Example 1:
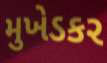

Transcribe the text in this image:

મુખેડકર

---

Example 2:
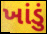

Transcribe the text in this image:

ખાંડું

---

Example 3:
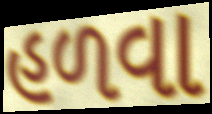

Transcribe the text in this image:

હળવા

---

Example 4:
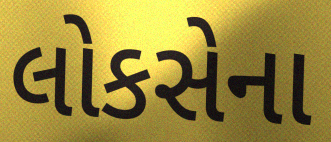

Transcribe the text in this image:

લોકસેના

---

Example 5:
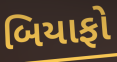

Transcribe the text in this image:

બિયાફો